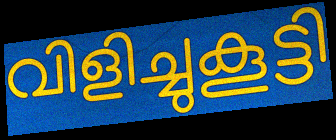
വിളിച്ചുകൂട്ടി